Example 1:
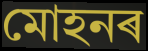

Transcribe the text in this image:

মোহনৰ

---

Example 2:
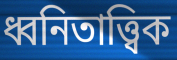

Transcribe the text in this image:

ধ্বনিতাত্ত্বিক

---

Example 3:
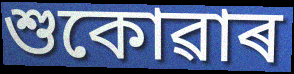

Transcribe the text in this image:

শুকোৱাৰ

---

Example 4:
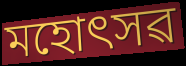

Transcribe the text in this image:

মহোৎসৱ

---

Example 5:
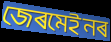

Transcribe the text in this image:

জেৰমেইনৰ